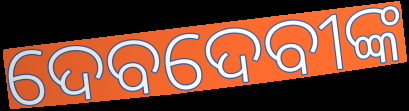
ଦେବଦେବୀଙ୍କ